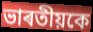
ভাৰতীয়কে